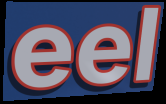
eel